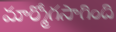
మార్మోగసాగింది